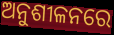
ଅନୁଶୀଳନରେ